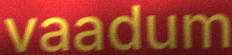
vaadum